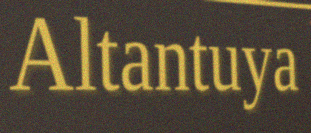
Altantuya